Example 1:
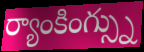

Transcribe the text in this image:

ర్యాంకింగ్స్ను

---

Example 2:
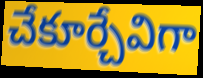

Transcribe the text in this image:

చేకూర్చేవిగా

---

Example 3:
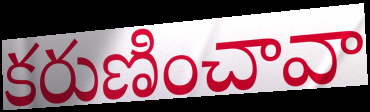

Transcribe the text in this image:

కరుణించావా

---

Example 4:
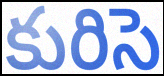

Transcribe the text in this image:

కురిసె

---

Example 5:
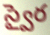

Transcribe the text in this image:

స్వైర